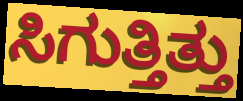
ಸಿಗುತ್ತಿತ್ತು